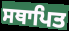
ਸਥਾਪਿਤ